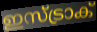
ഇസ്ട്രാക്